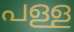
പള്ള